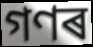
গণৰ